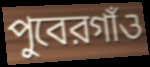
পুবেরগাঁও